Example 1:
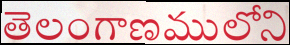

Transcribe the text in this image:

తెలంగాణములోని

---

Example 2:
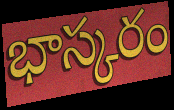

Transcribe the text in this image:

భాస్కరం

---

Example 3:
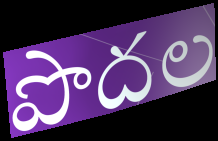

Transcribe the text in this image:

పొదల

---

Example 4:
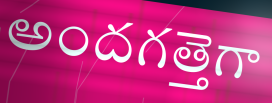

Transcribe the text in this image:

అందగత్తెగా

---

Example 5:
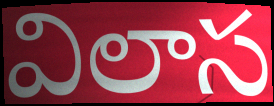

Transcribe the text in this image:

విలాస